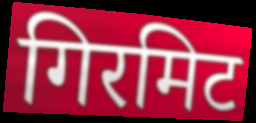
गिरमिट